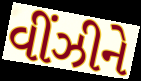
વીંઝીને